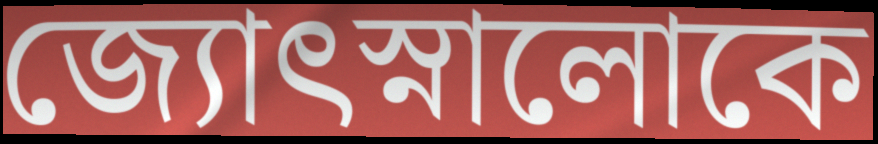
জ্যোৎস্নালোকে